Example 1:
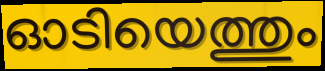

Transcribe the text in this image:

ഓടിയെത്തും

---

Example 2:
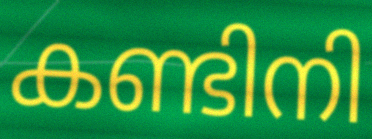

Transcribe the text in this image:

കണ്ടിനി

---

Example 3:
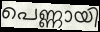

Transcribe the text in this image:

പെണ്ണായി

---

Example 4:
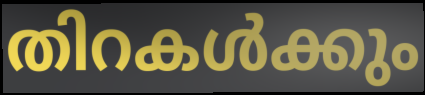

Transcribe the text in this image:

തിറകൾക്കും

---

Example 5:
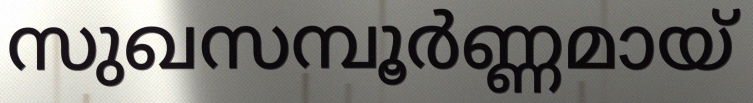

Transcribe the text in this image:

സുഖസമ്പൂർണ്ണമായ്